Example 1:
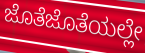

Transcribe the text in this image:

ಜೊತೆಜೊತೆಯಲ್ಲೇ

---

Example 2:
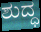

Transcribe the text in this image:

ಶುದ್ಧ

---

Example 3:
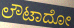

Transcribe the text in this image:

ಲೌಟಾದೋ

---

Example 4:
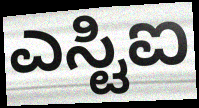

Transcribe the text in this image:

ಎಸ್ಟಿಐ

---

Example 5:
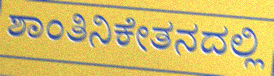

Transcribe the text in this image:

ಶಾಂತಿನಿಕೇತನದಲ್ಲಿ